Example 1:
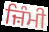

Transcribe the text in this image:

ਜ਼ਿੰਮੀ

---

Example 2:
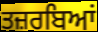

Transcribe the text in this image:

ਤਜ਼ਰਬਿਆਂ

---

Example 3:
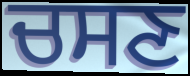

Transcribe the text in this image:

ਚਸਣ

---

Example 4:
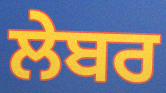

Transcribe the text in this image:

ਲੇਬਰ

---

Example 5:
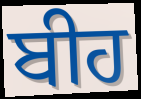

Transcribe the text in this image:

ਬੀਹ